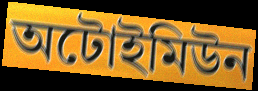
অটোইমিউন